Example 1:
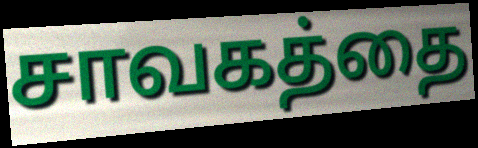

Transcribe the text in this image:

சாவகத்தை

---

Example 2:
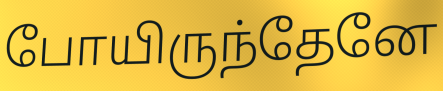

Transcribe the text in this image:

போயிருந்தேனே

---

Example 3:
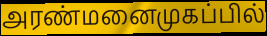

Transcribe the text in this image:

அரண்மனைமுகப்பில்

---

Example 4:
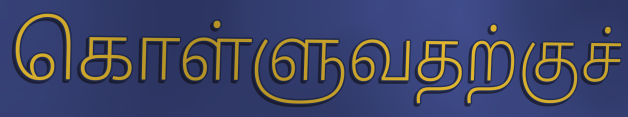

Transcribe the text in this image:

கொள்ளுவதற்குச்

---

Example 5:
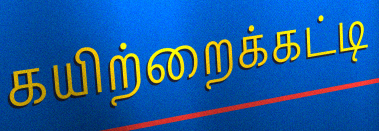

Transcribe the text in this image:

கயிற்றைக்கட்டி